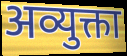
अव्युक्ता